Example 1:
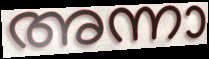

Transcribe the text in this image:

അന്നാ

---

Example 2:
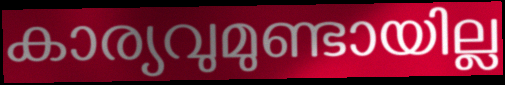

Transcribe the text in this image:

കാര്യവുമുണ്ടായില്ല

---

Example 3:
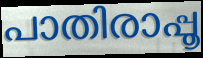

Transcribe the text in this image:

പാതിരാപ്പൂ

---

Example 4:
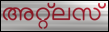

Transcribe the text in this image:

അറ്റ്ലസ്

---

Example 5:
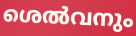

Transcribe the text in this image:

ശെൽവനും